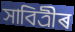
সাবিত্ৰীৰ